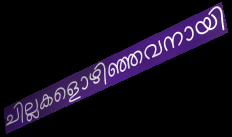
ചില്ലകളൊഴിഞ്ഞവനായി